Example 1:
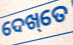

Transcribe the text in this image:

ଦେଖ୍‌ତେ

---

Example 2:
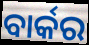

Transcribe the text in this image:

ବାର୍କର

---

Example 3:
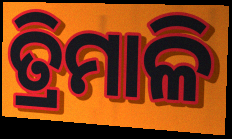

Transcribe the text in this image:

ତ୍ରିମାଳି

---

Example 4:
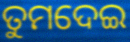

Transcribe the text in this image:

ତୁମଦେଇ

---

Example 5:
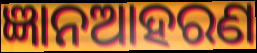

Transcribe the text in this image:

ଜ୍ଞାନଆହରଣ